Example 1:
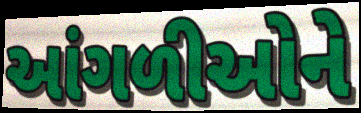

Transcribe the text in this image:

આંગળીઓને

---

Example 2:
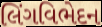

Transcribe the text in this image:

લિંગવિભેદન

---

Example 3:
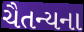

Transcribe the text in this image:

ચૈતન્યના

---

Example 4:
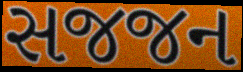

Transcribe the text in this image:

સજજન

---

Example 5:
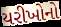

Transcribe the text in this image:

યરીખોનો